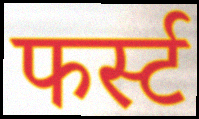
फर्स्ट